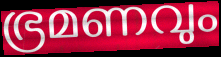
ഭ്രമണവും